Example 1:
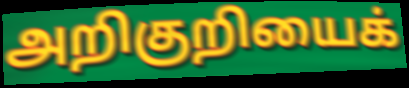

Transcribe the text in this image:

அறிகுறியைக்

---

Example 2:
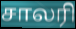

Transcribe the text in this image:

சாலரி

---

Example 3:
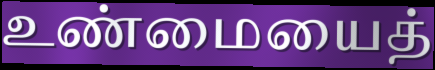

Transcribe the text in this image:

உண்மையைத்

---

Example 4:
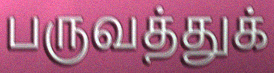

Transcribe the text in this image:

பருவத்துக்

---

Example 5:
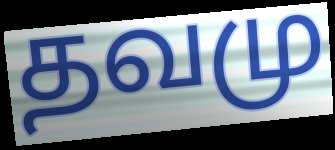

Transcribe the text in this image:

தவமு